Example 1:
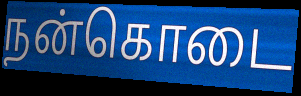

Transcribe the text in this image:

நன்கொடை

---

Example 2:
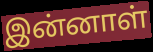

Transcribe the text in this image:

இன்னாள்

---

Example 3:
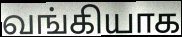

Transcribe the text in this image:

வங்கியாக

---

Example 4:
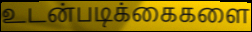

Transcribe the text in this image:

உடன்படிக்கைகளை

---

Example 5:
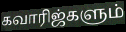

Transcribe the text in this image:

கவாரிஜ்களும்